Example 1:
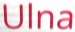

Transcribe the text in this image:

Ulna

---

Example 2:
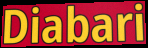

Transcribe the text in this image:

Diabari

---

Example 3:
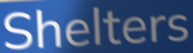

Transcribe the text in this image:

Shelters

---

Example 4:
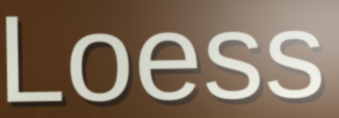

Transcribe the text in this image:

Loess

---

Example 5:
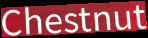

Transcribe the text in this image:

Chestnut